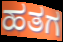
ಹತಗ